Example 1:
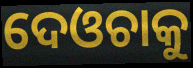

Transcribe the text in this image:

ଦେଓଚାକୁ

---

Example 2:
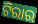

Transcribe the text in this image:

ଟିରାର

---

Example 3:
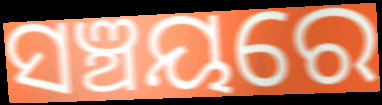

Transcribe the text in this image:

ସଞ୍ଚୟରେ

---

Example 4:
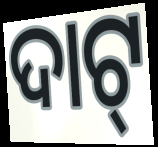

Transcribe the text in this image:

ଦାଟ୍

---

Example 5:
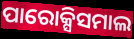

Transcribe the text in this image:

ପାରୋକ୍ସିସମାଲ